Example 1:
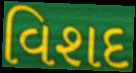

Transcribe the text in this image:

વિશદ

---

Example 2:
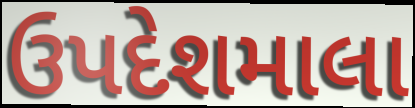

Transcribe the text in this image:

ઉપદેશમાલા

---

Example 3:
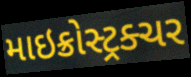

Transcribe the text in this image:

માઇક્રોસ્ટ્રક્ચર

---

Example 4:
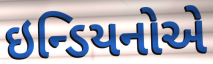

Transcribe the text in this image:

ઇન્ડિયનોએ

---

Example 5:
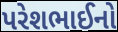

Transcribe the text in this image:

પરેશભાઈનો